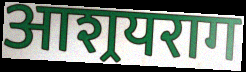
आश्रयराग